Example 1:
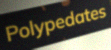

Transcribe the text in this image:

Polypedates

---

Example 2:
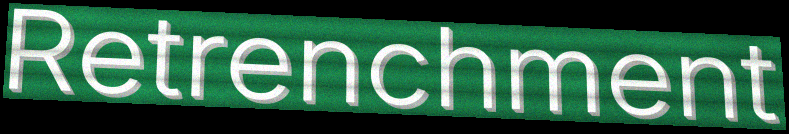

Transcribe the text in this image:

Retrenchment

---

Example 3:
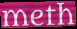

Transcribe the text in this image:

meth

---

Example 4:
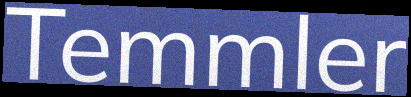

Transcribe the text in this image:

Temmler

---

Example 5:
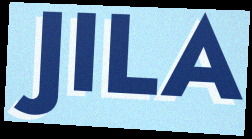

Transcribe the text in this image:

JILA